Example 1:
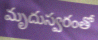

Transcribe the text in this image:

మృదుస్వరంతో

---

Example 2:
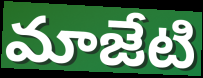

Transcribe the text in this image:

మాజేటి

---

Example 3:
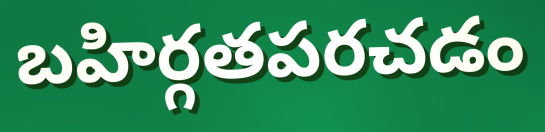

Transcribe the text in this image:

బహిర్గతపరచడం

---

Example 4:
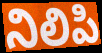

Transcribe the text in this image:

నిలిపి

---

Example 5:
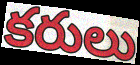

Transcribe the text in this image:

కరులు